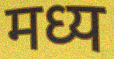
मध्य